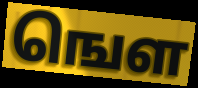
ஙௌ